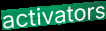
activators